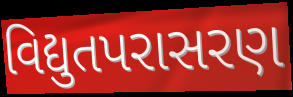
વિદ્યુતપરાસરણ